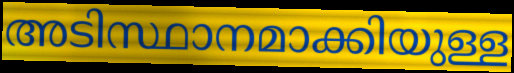
അടിസ്ഥാനമാക്കിയുള്ള